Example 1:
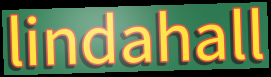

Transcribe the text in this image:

lindahall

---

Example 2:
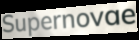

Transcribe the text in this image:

Supernovae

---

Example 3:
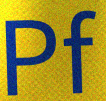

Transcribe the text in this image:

Pf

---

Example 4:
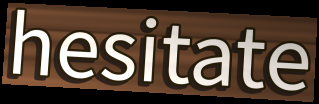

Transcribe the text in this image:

hesitate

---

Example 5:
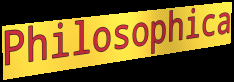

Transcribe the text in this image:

Philosophica